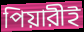
পিয়ারীই